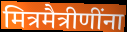
मित्रमैत्रीणींना